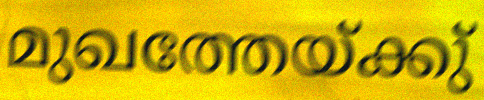
മുഖത്തേയ്ക്കു്